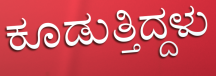
ಕೂಡುತ್ತಿದ್ದಳು